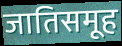
जातिसमूह